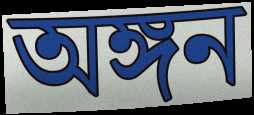
অঙ্গন